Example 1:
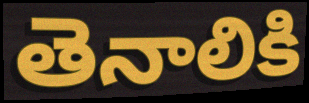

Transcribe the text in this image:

తెనాలికి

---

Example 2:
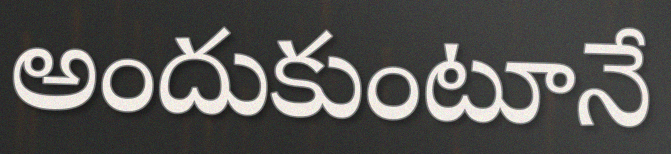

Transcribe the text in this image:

అందుకుంటూనే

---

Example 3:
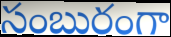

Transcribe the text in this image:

సంబురంగా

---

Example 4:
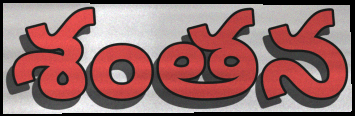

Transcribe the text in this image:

శంతన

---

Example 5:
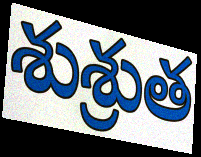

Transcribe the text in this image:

శుశ్రుత